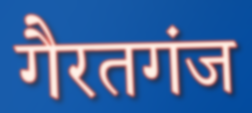
गैरतगंज